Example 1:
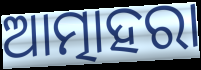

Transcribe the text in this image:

ଆତ୍ମାହରା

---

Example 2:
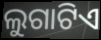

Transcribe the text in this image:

ଲୁଗାଟିଏ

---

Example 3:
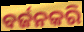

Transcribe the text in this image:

ବର୍ଜନକରି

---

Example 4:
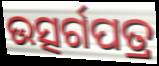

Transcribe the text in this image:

ଉତ୍ସର୍ଗପତ୍ର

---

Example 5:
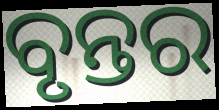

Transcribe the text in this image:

ବୃନ୍ତର